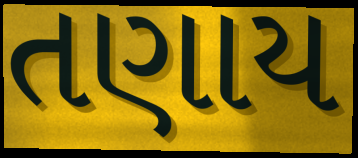
તણાય